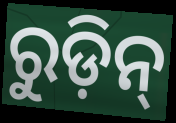
ରୁଡ଼ିନ୍